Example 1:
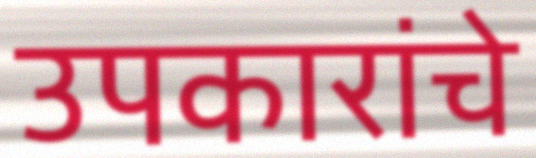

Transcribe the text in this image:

उपकारांचे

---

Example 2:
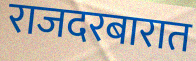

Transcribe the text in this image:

राजदरबारात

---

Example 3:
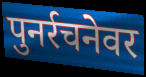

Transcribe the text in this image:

पुनर्रचनेवर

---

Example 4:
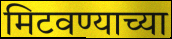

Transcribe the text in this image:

मिटवण्याच्या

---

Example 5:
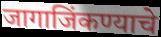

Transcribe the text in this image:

जागाजिंकण्याचे